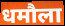
धमौला